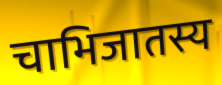
चाभिजातस्य